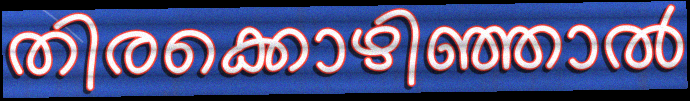
തിരക്കൊഴിഞ്ഞാൽ